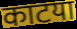
काटया